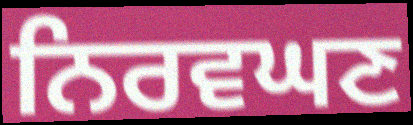
ਨਿਰਵਘਣ